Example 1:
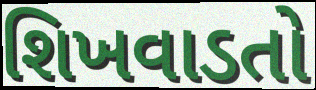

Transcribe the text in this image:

શિખવાડતો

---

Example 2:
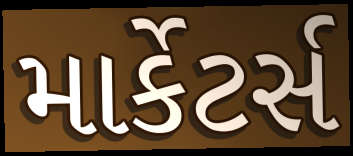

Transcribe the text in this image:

માર્કેટર્સ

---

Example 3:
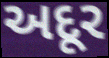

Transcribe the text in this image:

અદૂર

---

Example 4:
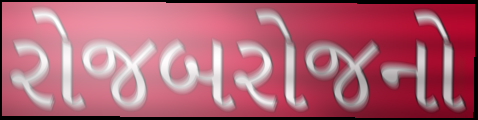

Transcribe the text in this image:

રોજબરોજનો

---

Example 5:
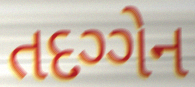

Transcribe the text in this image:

તદગ્ગેન